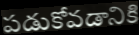
పడుకోవడానికి